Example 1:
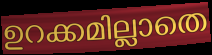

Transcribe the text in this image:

ഉറക്കമില്ലാതെ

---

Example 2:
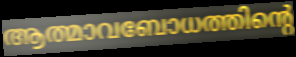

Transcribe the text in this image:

ആത്മാവബോധത്തിന്റെ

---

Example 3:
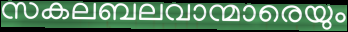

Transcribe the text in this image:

സകലബലവാന്മാരെയും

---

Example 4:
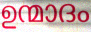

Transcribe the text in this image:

ഉന്മാദം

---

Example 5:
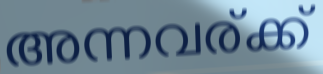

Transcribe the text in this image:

അന്നവര്ക്ക്